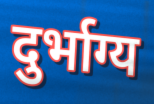
दुर्भाग्य